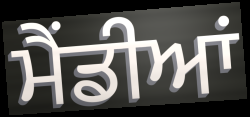
ਮੈਂਡੀਆਂ